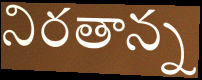
నిరతాన్న